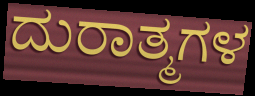
ದುರಾತ್ಮಗಳ